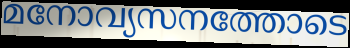
മനോവ്യസനത്തോടെ